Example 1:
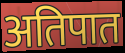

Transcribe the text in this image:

अतिपात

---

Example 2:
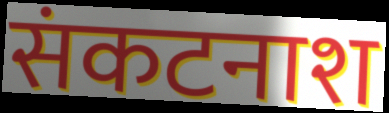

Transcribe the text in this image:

संकटनाश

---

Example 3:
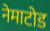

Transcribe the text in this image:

नेमाटोड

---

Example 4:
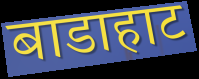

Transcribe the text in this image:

बाडाहाट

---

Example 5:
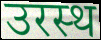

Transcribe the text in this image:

उरस्थ